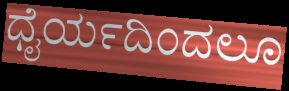
ಧೈರ್ಯದಿಂದಲೂ